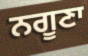
ਨਗੂਣਾ